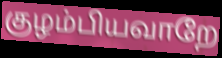
குழம்பியவாறே